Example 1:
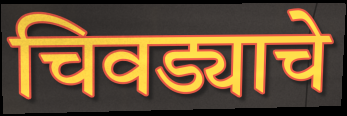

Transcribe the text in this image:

चिवड्याचे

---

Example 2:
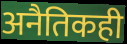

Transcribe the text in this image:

अनैतिकही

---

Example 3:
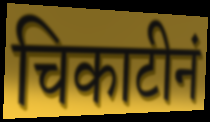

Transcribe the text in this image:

चिकाटीनं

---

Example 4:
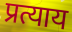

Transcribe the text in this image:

प्रत्याय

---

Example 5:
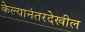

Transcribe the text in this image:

केल्यानंतरदेखील